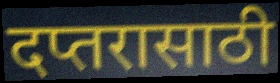
दप्तरासाठी